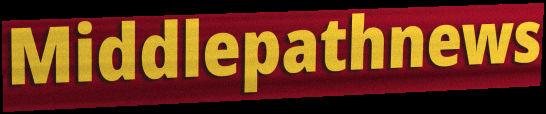
Middlepathnews